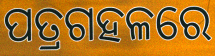
ପତ୍ରଗହଳରେ